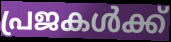
പ്രജകൾക്ക്